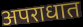
अपराधात